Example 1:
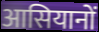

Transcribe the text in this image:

आसियानों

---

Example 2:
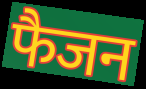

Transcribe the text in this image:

फैजन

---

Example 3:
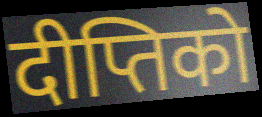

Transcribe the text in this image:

दीप्तिको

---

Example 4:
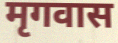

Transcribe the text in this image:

मृगवास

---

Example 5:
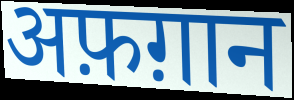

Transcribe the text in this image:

अफ़ग़ान